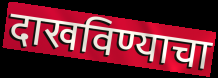
दाखविण्याचा